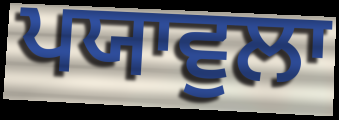
ਪਯਾਵੁਲਾ